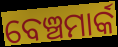
ବେଞ୍ଚମାର୍କ